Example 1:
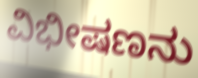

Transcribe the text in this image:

ವಿಭೀಷಣನು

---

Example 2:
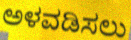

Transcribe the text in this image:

ಅಳವಡಿಸಲು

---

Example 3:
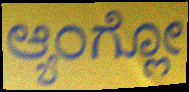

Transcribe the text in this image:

ಆ್ಯಂಗ್ಲೋ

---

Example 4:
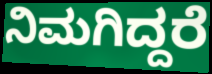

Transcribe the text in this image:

ನಿಮಗಿದ್ದರೆ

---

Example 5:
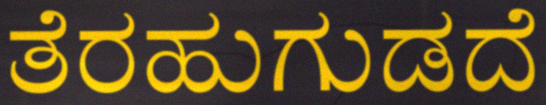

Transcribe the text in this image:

ತೆರಹುಗುಡದೆ